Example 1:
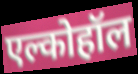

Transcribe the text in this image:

एल्कोहॉल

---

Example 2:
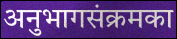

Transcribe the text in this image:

अनुभागसंक्रमका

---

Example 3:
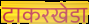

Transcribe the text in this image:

टाकरखेडा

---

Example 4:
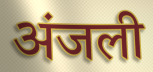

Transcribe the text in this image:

अंजली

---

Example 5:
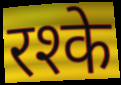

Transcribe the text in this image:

रश्के